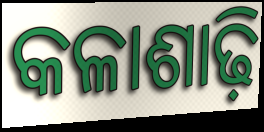
କଳାଶାଢ଼ି